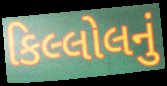
કિલ્લોલનું